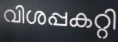
വിശപ്പകറ്റി